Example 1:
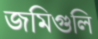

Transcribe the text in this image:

জমিগুলি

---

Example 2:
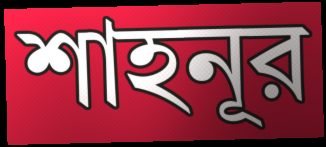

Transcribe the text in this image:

শাহনূর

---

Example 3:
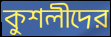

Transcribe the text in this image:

কুশলীদের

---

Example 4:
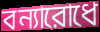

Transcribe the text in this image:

বন্যারোধে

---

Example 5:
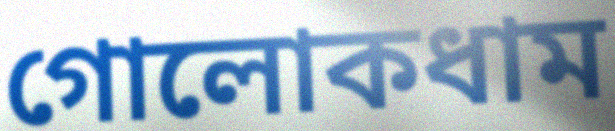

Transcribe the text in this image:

গোলোকধাম